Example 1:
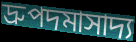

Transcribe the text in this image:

দ্রুপদমাসাদ্য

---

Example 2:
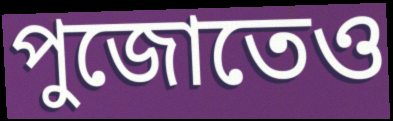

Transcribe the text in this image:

পুজোতেও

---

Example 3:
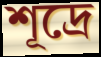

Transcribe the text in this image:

শূদ্রে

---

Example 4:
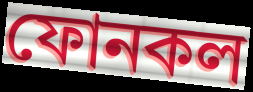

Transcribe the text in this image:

ফোনকল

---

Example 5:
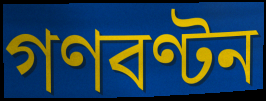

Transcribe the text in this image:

গণবণ্টন